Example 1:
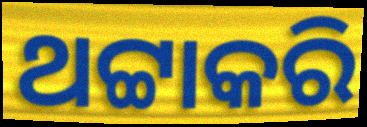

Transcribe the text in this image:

ଥଟ୍ଟାକରି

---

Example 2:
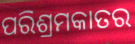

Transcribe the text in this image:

ପରିଶ୍ରମକାତର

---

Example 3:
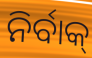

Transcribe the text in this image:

ନିର୍ବାକ୍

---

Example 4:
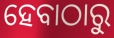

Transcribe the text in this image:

ହେବାଠାରୁ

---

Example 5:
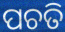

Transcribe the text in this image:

ପଚତି